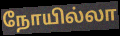
நோயில்லா